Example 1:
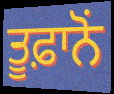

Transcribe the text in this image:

ਤੂਫ਼ਾਨੋਂ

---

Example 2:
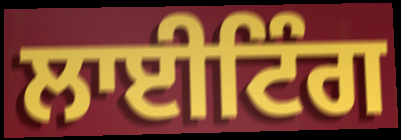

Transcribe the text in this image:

ਲਾਈਟਿੰਗ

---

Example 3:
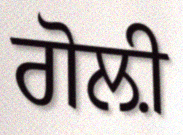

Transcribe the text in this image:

ਗੋਲ਼ੀ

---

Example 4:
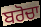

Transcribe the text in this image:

ਬਰੋਚਾ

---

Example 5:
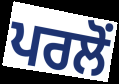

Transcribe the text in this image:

ਪਰਲੋਂ